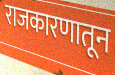
राजकारणातून